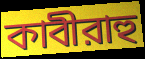
কাবীরাহু